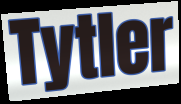
Tytler